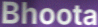
Bhoota